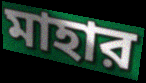
মাহার